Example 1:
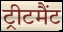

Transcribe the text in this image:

ट्रीटमैंट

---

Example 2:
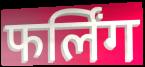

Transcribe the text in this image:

फर्लिंग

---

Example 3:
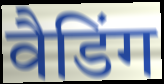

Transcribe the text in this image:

वैडिंग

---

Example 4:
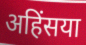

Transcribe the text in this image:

अहिंसया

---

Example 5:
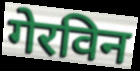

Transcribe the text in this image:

गेरविन